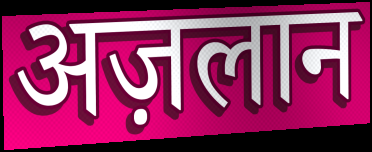
अज़लान